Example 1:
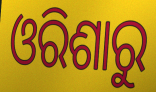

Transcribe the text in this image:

ଓରିଶାରୁ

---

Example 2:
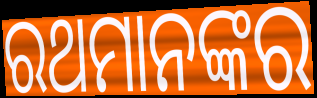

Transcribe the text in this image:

ରଥମାନଙ୍କର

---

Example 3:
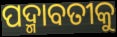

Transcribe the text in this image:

ପଦ୍ମାବତୀକୁ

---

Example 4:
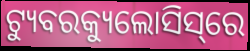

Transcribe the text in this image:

ଟ୍ୟୁବରକ୍ୟୁଲୋସିସ୍‌ରେ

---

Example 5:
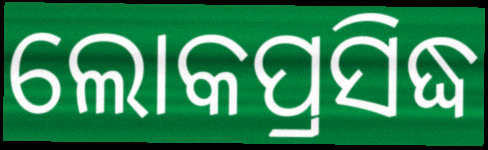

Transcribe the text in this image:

ଲୋକପ୍ରସିଦ୍ଧ